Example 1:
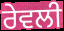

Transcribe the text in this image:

ਰੇਵਲੀ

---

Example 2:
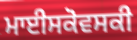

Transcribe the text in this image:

ਮਾਈਸਕੋਵਸਕੀ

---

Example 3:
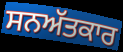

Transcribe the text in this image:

ਸਨਅੱਤਕਾਰ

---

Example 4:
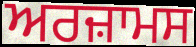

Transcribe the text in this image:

ਅਰਜ਼ਾਮਸ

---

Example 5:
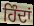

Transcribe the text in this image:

ਹਿੰਦਾਂ